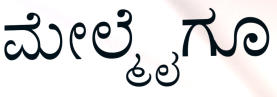
ಮೇಲ್ಮೈಗೂ